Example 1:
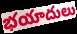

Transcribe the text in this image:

భయాదులు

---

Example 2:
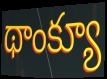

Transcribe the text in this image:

థాంక్యూ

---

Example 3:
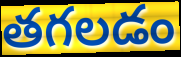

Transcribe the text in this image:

తగలడం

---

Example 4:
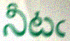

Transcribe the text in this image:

నీటఁ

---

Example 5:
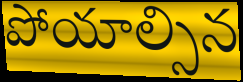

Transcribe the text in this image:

పోయాల్సిన